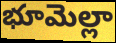
భూమెల్లా